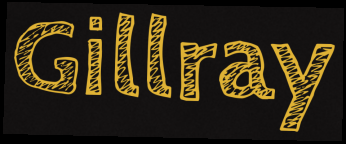
Gillray